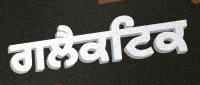
ਗਲੈਕਟਿਕ